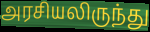
அரசியலிருந்து